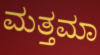
ಮತ್ತಮಾ